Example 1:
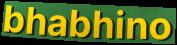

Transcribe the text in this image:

bhabhino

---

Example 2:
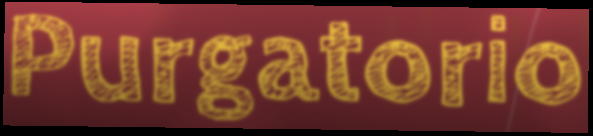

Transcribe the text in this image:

Purgatorio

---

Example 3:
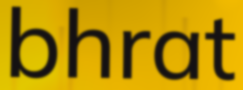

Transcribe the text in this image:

bhrat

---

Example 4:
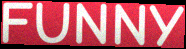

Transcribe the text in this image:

FUNNY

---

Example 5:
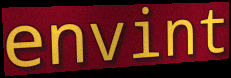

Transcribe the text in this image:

envint